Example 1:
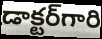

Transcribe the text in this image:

డాక్టర్‌గారి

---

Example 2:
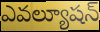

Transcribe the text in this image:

ఎవల్యూషన్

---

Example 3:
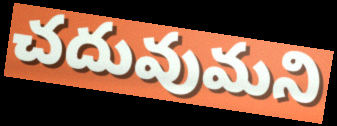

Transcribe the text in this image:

చదువుమని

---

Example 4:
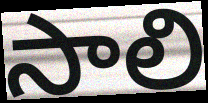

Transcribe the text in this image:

సాలి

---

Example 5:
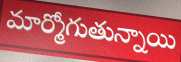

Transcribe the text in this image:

మార్మోగుతున్నాయి